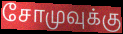
சோமுவுக்கு